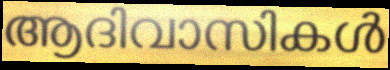
ആദിവാസികൾ